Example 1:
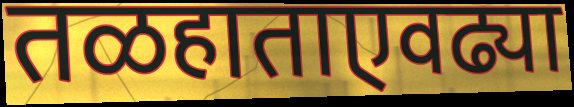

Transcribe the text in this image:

तळहाताएवढ्या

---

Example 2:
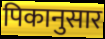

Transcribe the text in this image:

पिकानुसार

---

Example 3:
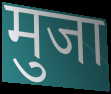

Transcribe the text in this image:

मुजा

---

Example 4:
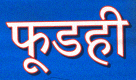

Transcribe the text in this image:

फूडही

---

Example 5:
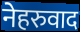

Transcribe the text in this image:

नेहरुवाद